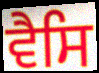
ਵੈਸਿ